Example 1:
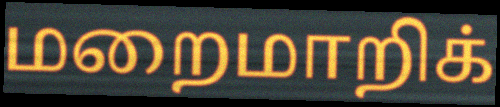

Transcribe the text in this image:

மறைமாறிக்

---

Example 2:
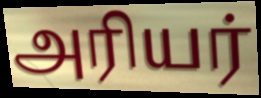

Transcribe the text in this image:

அரியர்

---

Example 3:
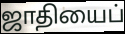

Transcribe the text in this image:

ஜாதியைப்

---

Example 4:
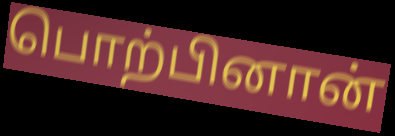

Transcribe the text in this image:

பொற்பினான்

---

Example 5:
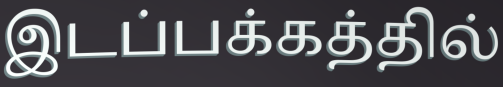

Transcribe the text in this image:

இடப்பக்கத்தில்